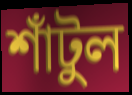
শাঁটুল